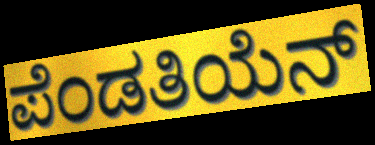
ಪೆಂಡತಿಯೆನ್